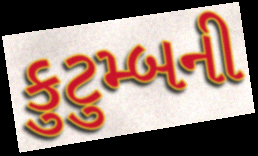
કુટુમ્બની